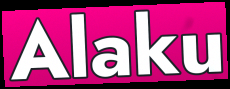
Alaku